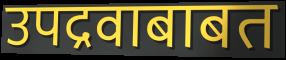
उपद्रवाबाबत